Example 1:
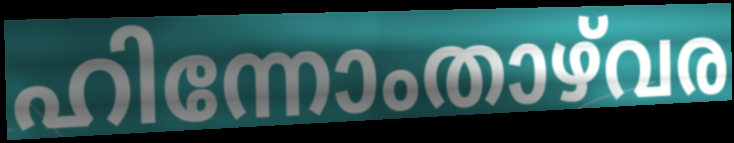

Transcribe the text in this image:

ഹിന്നോംതാഴ്‌വര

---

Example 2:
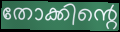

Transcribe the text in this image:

തോക്കിന്റെ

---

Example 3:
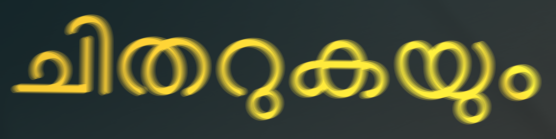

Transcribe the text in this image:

ചിതറുകയും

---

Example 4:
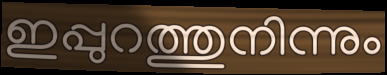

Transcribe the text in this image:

ഇപ്പുറത്തുനിന്നും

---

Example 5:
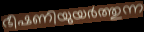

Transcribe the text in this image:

ഭീഷണിയുയർത്തുന്ന